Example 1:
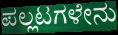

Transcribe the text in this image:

ಪಲ್ಲಟಗಳೇನು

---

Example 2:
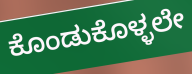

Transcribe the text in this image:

ಕೊಂಡುಕೊಳ್ಳಲೇ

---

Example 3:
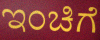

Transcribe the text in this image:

ಇಂಚಿಗೆ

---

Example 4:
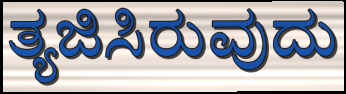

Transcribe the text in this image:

ತ್ಯಜಿಸಿರುವುದು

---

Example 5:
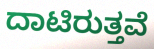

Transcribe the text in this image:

ದಾಟಿರುತ್ತವೆ